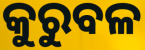
କୁରୁବଳ